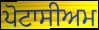
ਪੋਟਾਸੀਅਮ